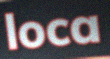
loca